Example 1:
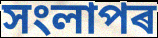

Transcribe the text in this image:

সংলাপৰ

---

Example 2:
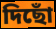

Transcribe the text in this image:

দিছোঁ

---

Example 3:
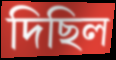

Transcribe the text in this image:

দিছিল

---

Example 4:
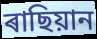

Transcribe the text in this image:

ৰাছিয়ান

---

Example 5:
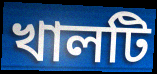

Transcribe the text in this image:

খালটি